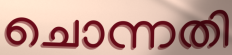
ചൊന്നതി